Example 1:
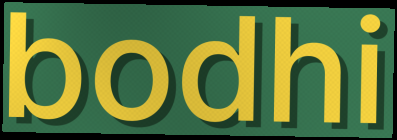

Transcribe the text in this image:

bodhi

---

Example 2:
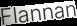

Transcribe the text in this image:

Flannan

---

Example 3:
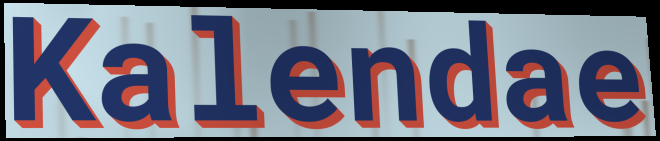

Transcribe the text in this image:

Kalendae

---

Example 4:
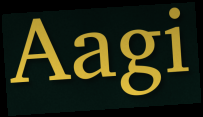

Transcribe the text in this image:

Aagi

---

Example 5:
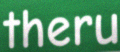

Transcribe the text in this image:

theru